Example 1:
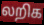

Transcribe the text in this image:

லறிக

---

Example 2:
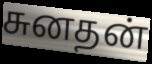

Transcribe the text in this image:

சுனதன்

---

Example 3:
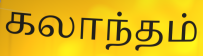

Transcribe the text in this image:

கலாந்தம்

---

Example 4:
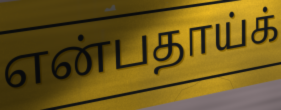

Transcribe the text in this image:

என்பதாய்க்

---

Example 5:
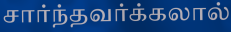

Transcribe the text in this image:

சார்ந்தவர்க்கலால்